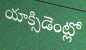
యాక్సిడెంట్లో